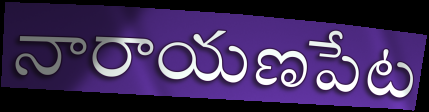
నారాయణపేట